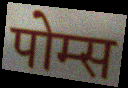
पोम्स